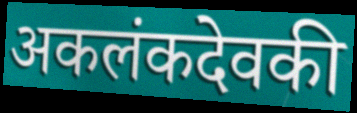
अकलंकदेवकी